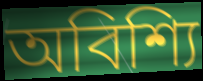
অবিশ্যি